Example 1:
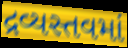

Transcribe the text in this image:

દ્રવ્યસ્તવમાં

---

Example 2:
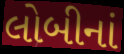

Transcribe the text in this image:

લોબીનાં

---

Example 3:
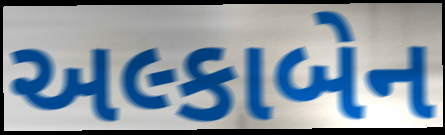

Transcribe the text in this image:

અલ્કાબેન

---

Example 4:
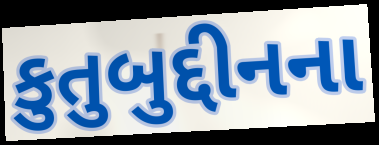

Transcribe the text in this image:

કુતુબુદ્દીનના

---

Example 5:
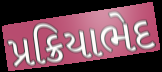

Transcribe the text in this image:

પ્રક્રિયાભેદ